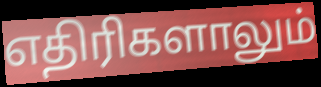
எதிரிகளாலும்